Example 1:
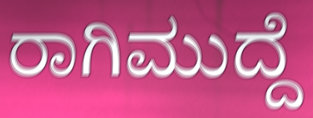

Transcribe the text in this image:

ರಾಗಿಮುದ್ದೆ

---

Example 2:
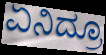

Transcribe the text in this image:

ಏನಿದ್ರೂ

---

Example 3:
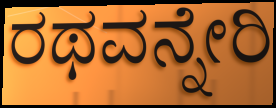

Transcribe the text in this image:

ರಥವನ್ನೇರಿ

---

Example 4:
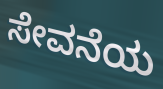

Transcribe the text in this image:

ಸೇವನೆಯ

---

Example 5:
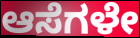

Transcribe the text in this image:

ಆಸೆಗಳೇ